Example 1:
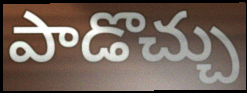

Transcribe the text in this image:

పాడొచ్చు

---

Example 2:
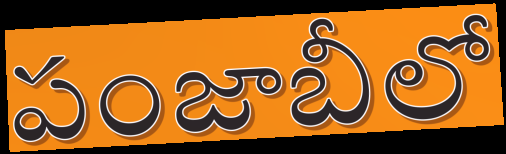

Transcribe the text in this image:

పంజాబీలో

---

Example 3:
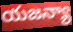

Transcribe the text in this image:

యజన్యా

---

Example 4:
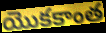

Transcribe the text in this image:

యొకకాంత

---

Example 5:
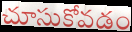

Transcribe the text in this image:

చూసుకోవడం